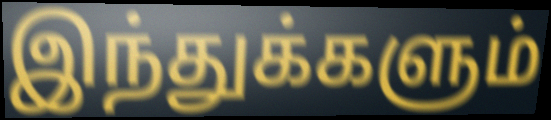
இந்துக்களும்